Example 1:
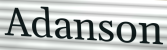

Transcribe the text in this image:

Adanson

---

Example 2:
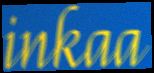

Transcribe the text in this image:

inkaa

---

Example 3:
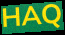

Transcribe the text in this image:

HAQ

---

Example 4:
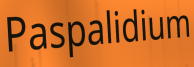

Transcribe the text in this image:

Paspalidium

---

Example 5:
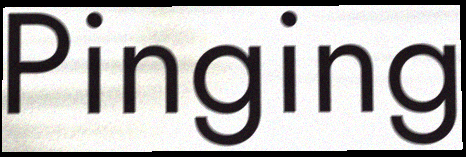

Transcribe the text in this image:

Pinging